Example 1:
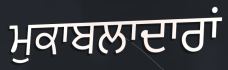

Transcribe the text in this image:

ਮੁਕਾਬਲਾਦਾਰਾਂ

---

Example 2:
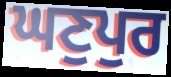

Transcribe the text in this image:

ਘਣੁਪੁਰ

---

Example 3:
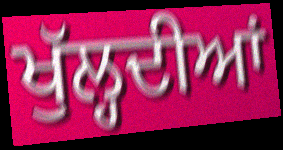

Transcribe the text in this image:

ਖੁੱਲ੍ਹਦੀਆਂ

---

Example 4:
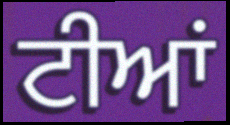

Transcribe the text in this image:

ਟੀਆਂ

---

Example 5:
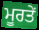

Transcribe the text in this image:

ਮੂਰਤੇਂ